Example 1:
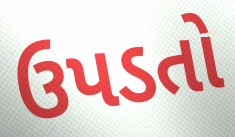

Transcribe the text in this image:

ઉપડતો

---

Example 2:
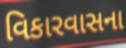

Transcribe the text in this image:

વિકારવાસના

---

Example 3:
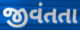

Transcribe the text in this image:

જીવંતતા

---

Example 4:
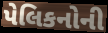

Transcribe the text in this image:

પેલિકનોની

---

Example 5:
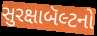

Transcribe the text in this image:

સુરક્ષાબૅલ્ટનો